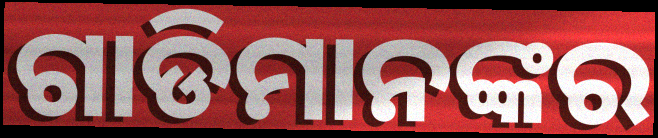
ଗାଡିମାନଙ୍କର